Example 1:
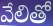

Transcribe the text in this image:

వేలితో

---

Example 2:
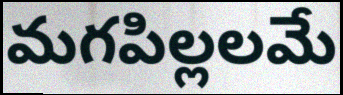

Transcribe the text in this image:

మగపిల్లలమే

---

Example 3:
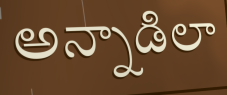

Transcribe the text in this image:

అన్నాడిలా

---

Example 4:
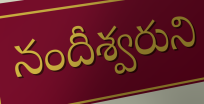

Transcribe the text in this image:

నందీశ్వరుని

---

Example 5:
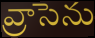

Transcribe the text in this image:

వ్రాసెను